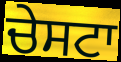
ਚੇਸਟਾ